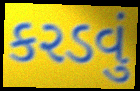
કરડવું